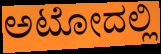
ಅಟೋದಲ್ಲಿ